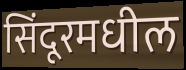
सिंदूरमधील